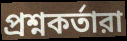
প্রশ্নকর্তারা